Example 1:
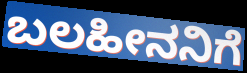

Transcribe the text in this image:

ಬಲಹೀನನಿಗೆ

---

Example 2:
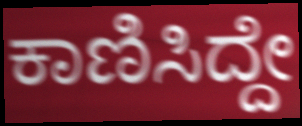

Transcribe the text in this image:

ಕಾಣಿಸಿದ್ದೇ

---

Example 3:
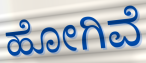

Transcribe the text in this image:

ಹೋಗಿವೆ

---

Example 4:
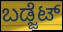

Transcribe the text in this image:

ಬಡ್ಜೆಟ್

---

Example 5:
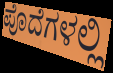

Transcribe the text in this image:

ಪೊದೆಗಳಲ್ಲಿ